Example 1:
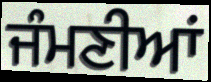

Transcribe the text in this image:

ਜੰਮਣੀਆਂ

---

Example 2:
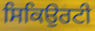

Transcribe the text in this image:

ਸਿਕਿਉਰਟੀ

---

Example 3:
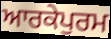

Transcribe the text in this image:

ਆਰਕੇਪੁਰਮ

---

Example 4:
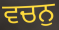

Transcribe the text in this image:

ਵਚਨੁ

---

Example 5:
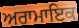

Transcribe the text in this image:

ਅਰਾਮਾਇਕ